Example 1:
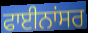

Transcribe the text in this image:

ਫਾਈਨਾਂਸਰ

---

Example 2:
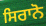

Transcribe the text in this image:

ਸਿਰਾਨੋ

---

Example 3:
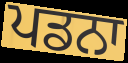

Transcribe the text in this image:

ਪਡਨਾ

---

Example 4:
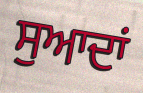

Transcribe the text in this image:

ਸੁਆਦਾਂ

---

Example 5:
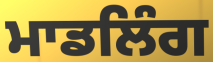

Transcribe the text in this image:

ਮਾਡਲਿੰਗ